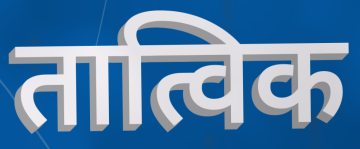
तात्विक